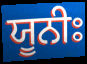
ਯੂਨੀਃ